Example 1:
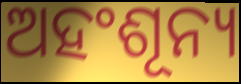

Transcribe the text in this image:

ଅହଂଶୂନ୍ୟ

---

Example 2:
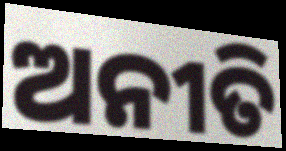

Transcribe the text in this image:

ଅନୀତି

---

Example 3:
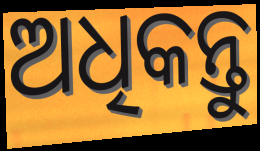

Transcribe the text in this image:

ଅଧିକନ୍ତୁ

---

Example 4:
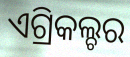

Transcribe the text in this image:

ଏଗ୍ରିକଲ୍ଚର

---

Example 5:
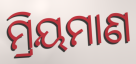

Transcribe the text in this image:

ମ୍ରିୟମାଣ